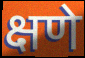
क्षणे